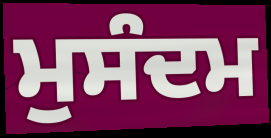
ਮੁਸੰਦਮ